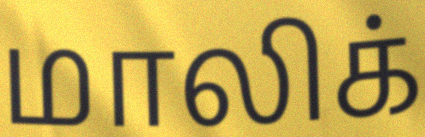
மாலிக்